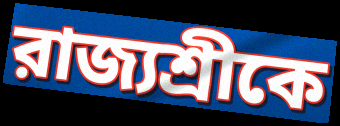
রাজ্যশ্রীকে